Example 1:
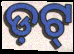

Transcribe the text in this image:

ଡ଼ଟ୍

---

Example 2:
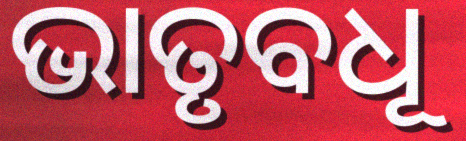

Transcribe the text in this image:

ଭାତୃବଧୂ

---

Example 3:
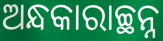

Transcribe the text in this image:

ଅନ୍ଧକାରାଚ୍ଛନ୍ନ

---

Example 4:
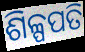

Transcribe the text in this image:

ଶିଳ୍ପପତି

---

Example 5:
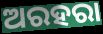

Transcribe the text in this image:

ଅରହରା